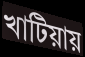
খাটিয়ায়